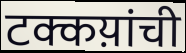
टक्कय़ांची